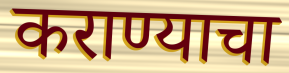
कराण्याचा